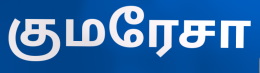
குமரேசா